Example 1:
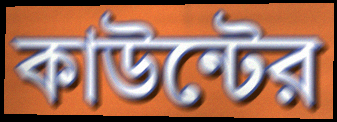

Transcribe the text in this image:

কাউন্টের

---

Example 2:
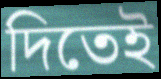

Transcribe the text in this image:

দিতেই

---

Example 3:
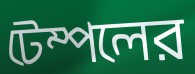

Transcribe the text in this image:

টেম্পলের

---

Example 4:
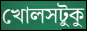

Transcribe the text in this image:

খোলসটুকু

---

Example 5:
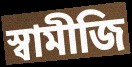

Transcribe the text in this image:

স্বামীজি